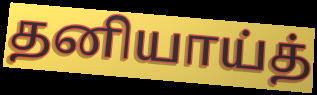
தனியாய்த்